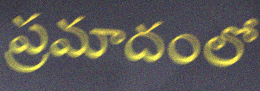
ప్రమాదంలో